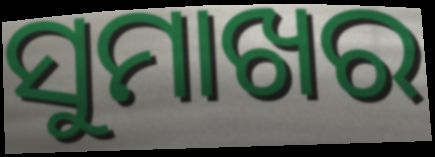
ସୁମାଖର